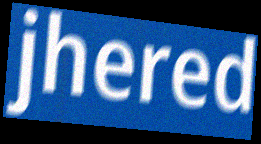
jhered